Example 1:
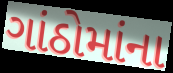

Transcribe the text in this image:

ગાંઠોમાંના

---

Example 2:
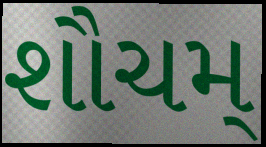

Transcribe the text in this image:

શૌચમ્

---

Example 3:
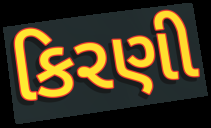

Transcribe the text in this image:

કિરણી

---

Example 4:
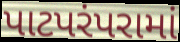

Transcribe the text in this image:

પાટપરંપરામાં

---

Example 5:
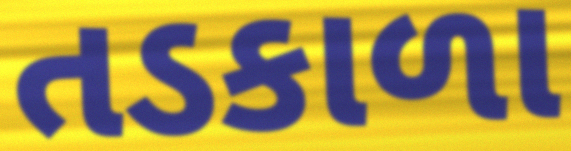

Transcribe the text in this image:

તડકાળા